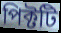
পিক্টটি